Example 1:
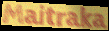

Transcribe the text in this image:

Maitraka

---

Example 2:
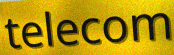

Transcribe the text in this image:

telecom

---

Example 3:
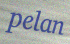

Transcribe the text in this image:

pelan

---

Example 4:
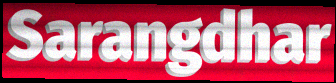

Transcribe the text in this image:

Sarangdhar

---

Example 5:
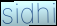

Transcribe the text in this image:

sidhi